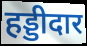
हड्डीदार